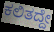
ಕಲಿತದ್ದೇ